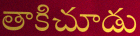
తాకిచూడు